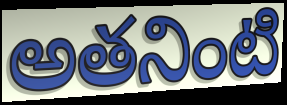
అతనింటి